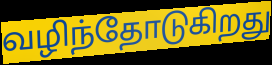
வழிந்தோடுகிறது